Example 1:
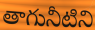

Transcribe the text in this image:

తాగునీటిని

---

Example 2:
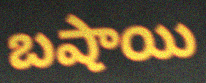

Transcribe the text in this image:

బషాయి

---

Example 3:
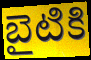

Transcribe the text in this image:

బైటికి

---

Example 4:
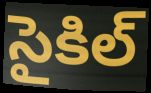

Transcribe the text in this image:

సైకిల్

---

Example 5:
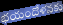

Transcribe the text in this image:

భయందోళనకు